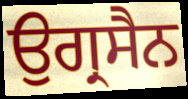
ਉਗ੍ਰਸੈਨ